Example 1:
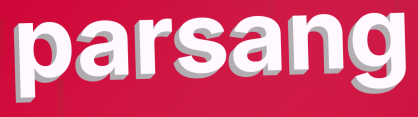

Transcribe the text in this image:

parsang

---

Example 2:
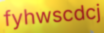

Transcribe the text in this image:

fyhwscdcj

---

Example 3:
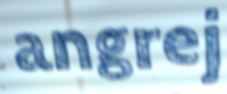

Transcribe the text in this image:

angrej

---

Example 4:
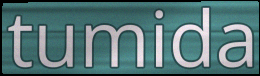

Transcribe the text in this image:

tumida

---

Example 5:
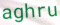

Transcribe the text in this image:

aghru